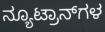
ನ್ಯೂಟ್ರಾನ್‌ಗಳ